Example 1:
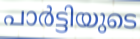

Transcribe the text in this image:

പാർട്ടിയുടെ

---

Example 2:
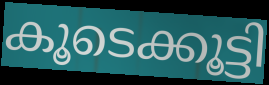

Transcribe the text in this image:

കൂടെക്കൂട്ടി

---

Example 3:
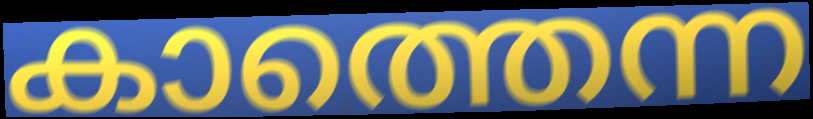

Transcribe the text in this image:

കാത്തെന്ന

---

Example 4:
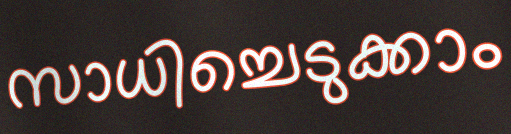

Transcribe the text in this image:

സാധിച്ചെടുക്കാം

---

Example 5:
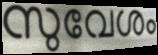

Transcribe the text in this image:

സുവേശം